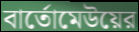
বার্তোমেউয়ের